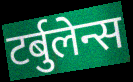
टर्बुलेन्स